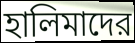
হালিমাদের